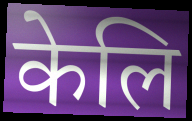
केलि